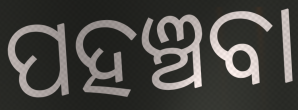
ପହଞ୍ଚବା